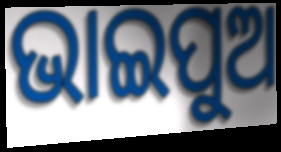
ଭାଇପୁଅ